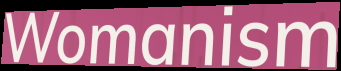
Womanism